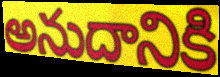
అనుదానికి